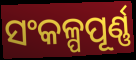
ସଂକଳ୍ପପୂର୍ଣ୍ଣ